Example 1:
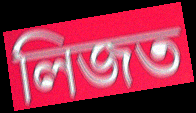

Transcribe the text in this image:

লিজত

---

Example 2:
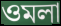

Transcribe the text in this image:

ওমলা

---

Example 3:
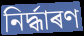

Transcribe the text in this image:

নিৰ্দ্ধাৰণ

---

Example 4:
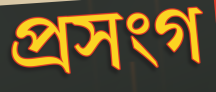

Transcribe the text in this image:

প্ৰসংগ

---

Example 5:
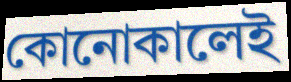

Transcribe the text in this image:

কোনোকালেই